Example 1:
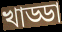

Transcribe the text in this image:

খাড্ডা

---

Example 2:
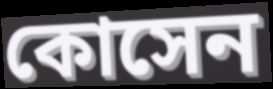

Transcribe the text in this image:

কোসেন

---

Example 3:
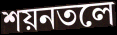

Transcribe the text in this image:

শয়নতলে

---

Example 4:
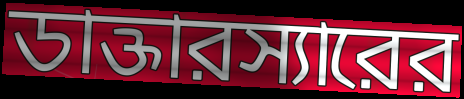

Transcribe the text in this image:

ডাক্তারস্যারের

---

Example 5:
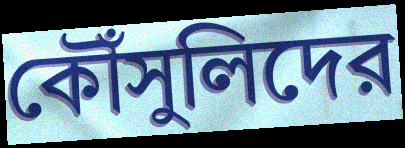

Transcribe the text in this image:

কৌঁসুলিদের